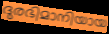
ദുരഭിമാനിയായ